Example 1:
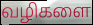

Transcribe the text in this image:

வழிகளை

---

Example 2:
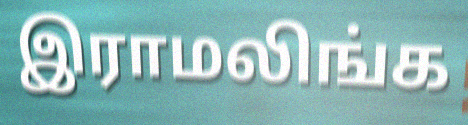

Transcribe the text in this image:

இராமலிங்க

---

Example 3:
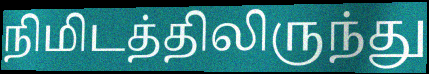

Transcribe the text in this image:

நிமிடத்திலிருந்து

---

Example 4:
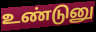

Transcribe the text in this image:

உண்டுனு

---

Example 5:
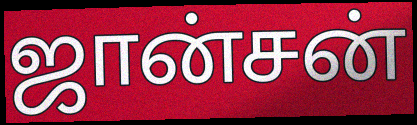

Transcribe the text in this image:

ஜான்சன்